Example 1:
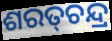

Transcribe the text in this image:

ଶରତ୍‌ଚନ୍ଦ୍ର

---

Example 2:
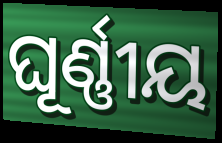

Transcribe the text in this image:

ଘୂର୍ଣ୍ଣୀୟ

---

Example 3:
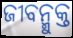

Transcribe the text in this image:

ଜୀବନ୍ମୁକ୍ତ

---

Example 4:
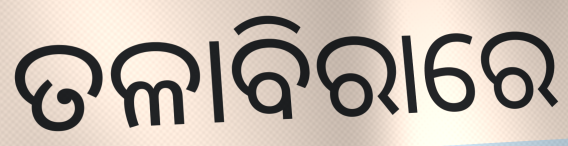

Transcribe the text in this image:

ତଳାବିରାରେ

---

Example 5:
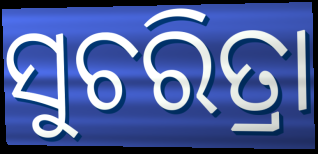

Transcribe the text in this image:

ସୁଚରିତ୍ରା